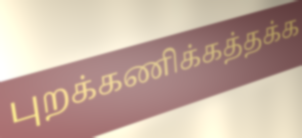
புறக்கணிக்கத்தக்க